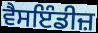
ਵੈਸਇੰਡੀਜ਼